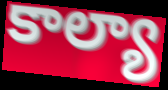
కాల్యా